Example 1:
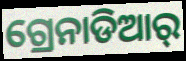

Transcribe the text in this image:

ଗ୍ରେନାଡିଆର୍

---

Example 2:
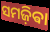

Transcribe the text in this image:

ସମଜ଼ିଵା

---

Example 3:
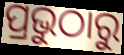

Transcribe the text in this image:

ପ୍ରଭୁଠାରୁ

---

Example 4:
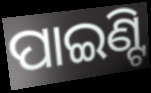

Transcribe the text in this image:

ପାଇଣ୍ଟି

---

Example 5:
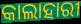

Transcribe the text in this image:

କାଲାହାରୀ